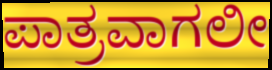
ಪಾತ್ರವಾಗಲೀ